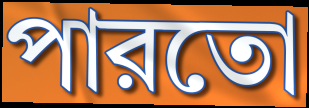
পারতো